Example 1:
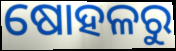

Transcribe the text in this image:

ଷୋହଳରୁ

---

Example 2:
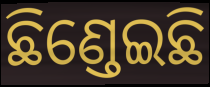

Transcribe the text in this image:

ଛିଣ୍ଡେଇଛି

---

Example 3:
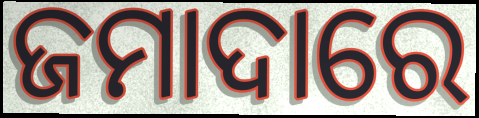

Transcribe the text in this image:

ଜମାଦାରେ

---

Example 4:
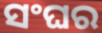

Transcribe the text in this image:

ସଂଘର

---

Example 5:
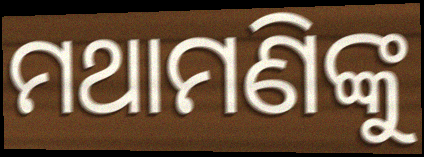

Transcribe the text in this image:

ମଥାମଣିଙ୍କୁ